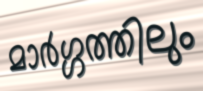
മാർഗ്ഗത്തിലും